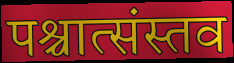
पश्चात्संस्तव